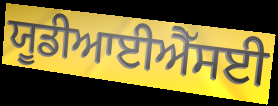
ਯੂਡੀਆਈਐੱਸਈ